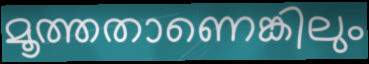
മൂത്തതാണെങ്കിലും